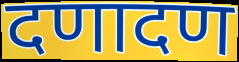
दणादण